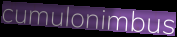
cumulonimbus